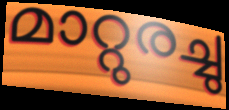
മാറ്റുരച്ചു